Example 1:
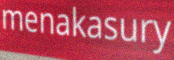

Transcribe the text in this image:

menakasury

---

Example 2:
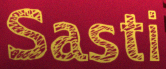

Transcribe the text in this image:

Sasti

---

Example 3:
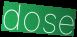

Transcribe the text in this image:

dose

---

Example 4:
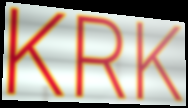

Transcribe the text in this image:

KRK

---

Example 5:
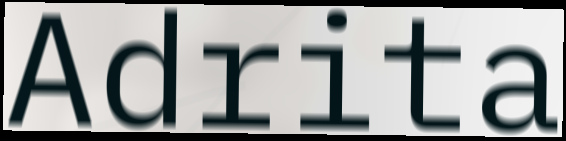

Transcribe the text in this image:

Adrita